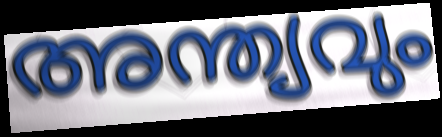
അന്ത്യവും